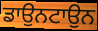
ਡਾਉਨਟਾਉਨ